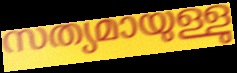
സത്യമായുള്ളു